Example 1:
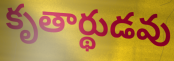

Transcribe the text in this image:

కృతార్థుడవు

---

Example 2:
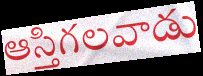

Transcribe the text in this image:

ఆస్తిగలవాడు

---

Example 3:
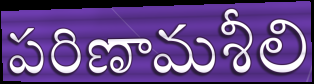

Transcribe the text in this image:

పరిణామశీలి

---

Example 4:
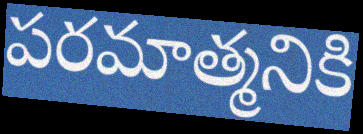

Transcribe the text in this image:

పరమాత్మనికి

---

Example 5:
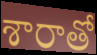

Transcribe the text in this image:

శారాతో